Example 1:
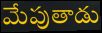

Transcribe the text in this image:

మేపుతాడు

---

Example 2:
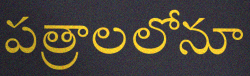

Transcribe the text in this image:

పత్రాలలోనూ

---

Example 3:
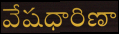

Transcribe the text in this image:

వేషధారిణా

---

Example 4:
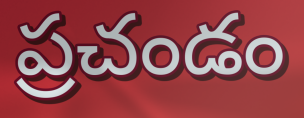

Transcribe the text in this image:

ప్రచండం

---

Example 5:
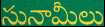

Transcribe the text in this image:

సునామీలు